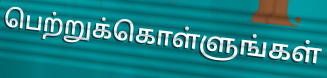
பெற்றுக்கொள்ளுங்கள்